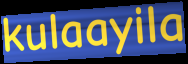
kulaayila